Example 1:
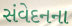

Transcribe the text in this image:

સંવેદનના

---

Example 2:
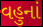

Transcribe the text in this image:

વહુનાં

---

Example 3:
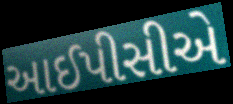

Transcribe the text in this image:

આઈપીસીએ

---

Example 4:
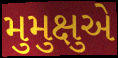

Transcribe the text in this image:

મુમુક્ષુએ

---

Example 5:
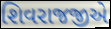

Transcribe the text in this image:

શિવરાજજીએ